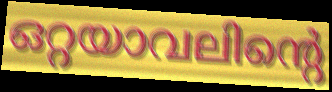
ഒറ്റയാവലിന്റെ